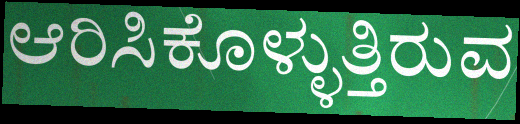
ಆರಿಸಿಕೊಳ್ಳುತ್ತಿರುವ